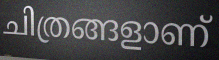
ചിത്രങ്ങളാണ്